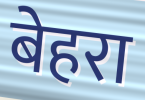
बेहरा